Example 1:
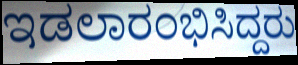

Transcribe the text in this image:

ಇಡಲಾರಂಭಿಸಿದ್ದರು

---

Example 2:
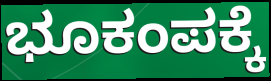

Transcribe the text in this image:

ಭೂಕಂಪಕ್ಕೆ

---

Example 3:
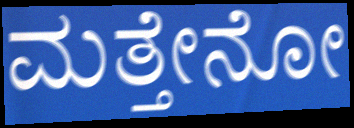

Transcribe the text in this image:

ಮತ್ತೇನೋ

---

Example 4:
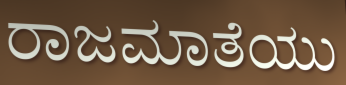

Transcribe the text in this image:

ರಾಜಮಾತೆಯು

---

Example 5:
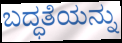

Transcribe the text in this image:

ಬದ್ಧತೆಯನ್ನು